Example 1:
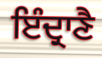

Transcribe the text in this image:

ਇੰਦ੍ਰਾਣੈ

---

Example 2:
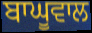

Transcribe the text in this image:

ਬਾਘੂਵਾਲ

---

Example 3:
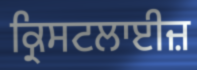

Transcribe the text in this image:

ਕ੍ਰਿਸਟਲਾਈਜ਼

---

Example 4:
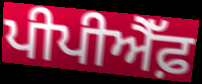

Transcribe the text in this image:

ਪੀਪੀਐੱਫ਼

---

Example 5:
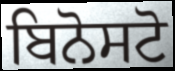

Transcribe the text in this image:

ਬਿਨੋਸਟੋ